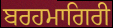
ਬਰਹਮਾਗਿਰੀ